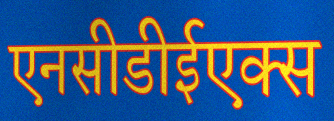
एनसीडीईएक्स